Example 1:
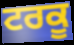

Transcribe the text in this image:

ਟਰਕੂ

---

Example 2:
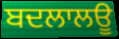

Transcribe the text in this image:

ਬਦਲਾਲਊ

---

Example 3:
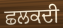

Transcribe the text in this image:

ਛਲਕਦੀ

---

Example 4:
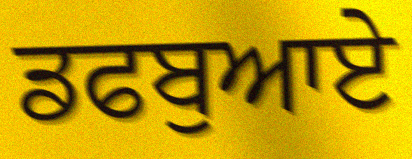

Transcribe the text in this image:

ਡਫਬੁਆਏ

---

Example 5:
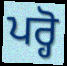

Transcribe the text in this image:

ਪਰ੍ਹੋ